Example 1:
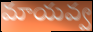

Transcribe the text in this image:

మాయవ్వ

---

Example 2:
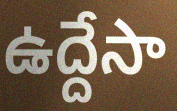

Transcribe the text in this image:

ఉద్దేసా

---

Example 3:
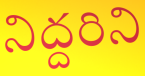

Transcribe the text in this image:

నిద్దరిని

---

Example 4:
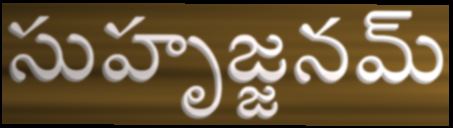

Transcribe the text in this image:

సుహృజ్జనమ్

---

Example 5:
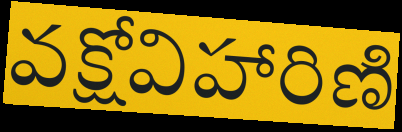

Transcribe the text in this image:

వక్షోవిహారిణి